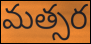
మత్సర